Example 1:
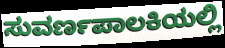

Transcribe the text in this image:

ಸುವರ್ಣಪಾಲಕಿಯಲ್ಲಿ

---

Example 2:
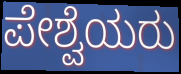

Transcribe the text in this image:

ಪೇಶ್ವೆಯರು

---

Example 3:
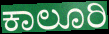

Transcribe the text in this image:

ಕಾಲೂರಿ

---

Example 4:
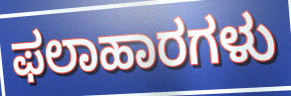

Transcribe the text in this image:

ಫಲಾಹಾರಗಳು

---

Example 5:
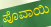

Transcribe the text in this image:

ಪೊವಾಯಿ